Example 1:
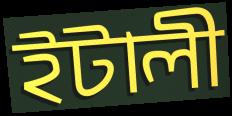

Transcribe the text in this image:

ইটালী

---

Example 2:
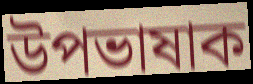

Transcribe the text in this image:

উপভাষাক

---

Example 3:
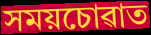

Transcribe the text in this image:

সময়চোৱাত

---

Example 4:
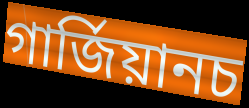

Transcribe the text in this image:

গাৰ্জিয়ানচ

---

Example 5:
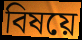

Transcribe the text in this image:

বিষয়ে